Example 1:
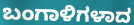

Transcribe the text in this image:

ಬಂಗಾಳಿಗಳಾದ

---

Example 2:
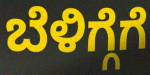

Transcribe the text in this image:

ಬೆಳಿಗ್ಗೆಗೆ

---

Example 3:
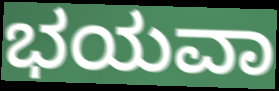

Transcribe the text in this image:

ಭಯವಾ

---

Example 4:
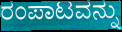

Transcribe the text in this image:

ರಂಪಾಟವನ್ನು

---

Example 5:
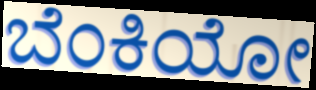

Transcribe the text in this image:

ಬೆಂಕಿಯೋ